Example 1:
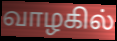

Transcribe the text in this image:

வாழகில்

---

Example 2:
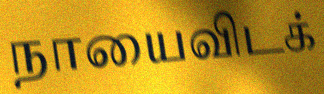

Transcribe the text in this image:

நாயைவிடக்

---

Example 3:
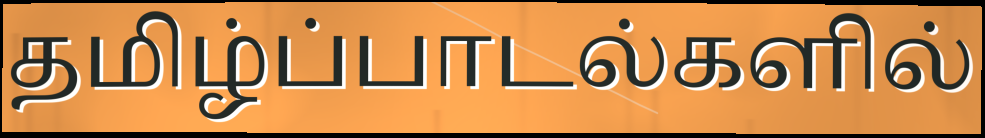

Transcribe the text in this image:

தமிழ்ப்பாடல்களில்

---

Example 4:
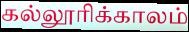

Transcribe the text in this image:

கல்லூரிக்காலம்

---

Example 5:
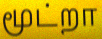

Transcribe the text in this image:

மூட்றா